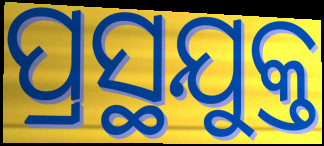
ପ୍ରସ୍ଥଯୁକ୍ତ